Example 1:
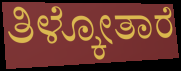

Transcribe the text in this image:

ತಿಳ್ಕೋತಾರೆ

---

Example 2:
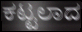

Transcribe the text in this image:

ಕಟ್ಟಲಾದ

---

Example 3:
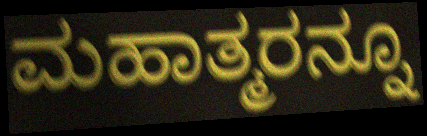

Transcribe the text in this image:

ಮಹಾತ್ಮರನ್ನೂ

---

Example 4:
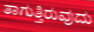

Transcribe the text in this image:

ತಾಗುತ್ತಿರುವುದು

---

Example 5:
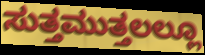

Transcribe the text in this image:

ಸುತ್ತಮುತ್ತಲಲ್ಲೂ